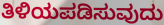
ತಿಳಿಯಪಡಿಸುವುದು